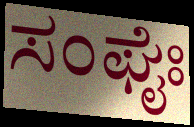
ಸಂಘೈಃ